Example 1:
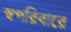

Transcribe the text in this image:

স্বপরিবারে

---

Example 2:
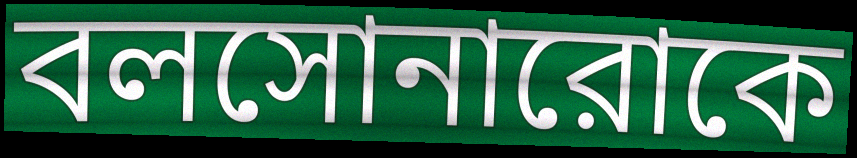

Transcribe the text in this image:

বলসোনারোকে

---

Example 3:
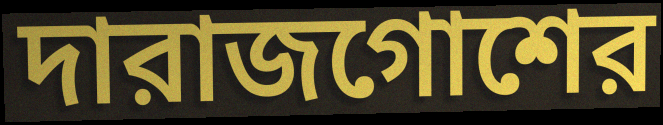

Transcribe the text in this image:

দারাজগোশের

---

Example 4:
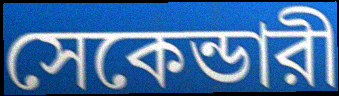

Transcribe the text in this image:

সেকেন্ডারী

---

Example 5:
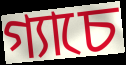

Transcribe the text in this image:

গ্যাচে